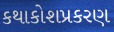
કથાકોશપ્રકરણ